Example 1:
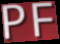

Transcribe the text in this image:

PF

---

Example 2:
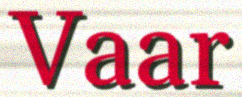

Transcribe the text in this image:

Vaar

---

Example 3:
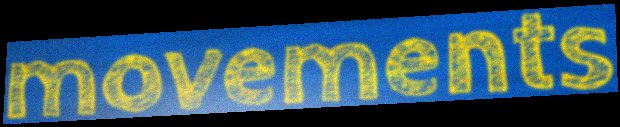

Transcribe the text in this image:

movements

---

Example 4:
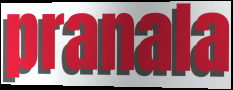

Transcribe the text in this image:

pranala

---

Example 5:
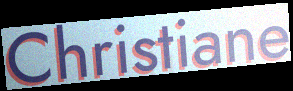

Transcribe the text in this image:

Christiane